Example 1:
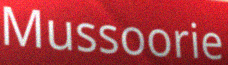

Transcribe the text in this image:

Mussoorie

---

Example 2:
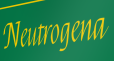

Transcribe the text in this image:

Neutrogena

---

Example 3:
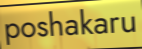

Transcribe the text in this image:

poshakaru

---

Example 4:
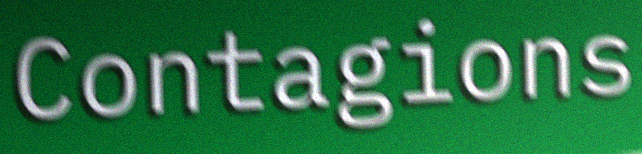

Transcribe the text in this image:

Contagions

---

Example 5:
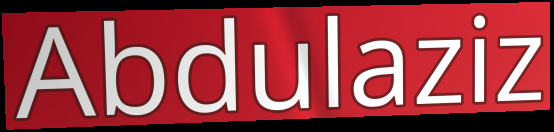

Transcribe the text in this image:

Abdulaziz